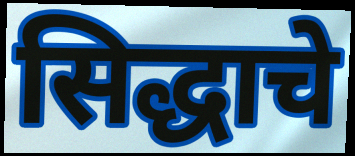
सिद्धाचे